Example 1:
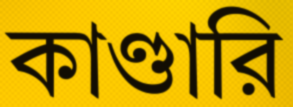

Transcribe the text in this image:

কাণ্ডারি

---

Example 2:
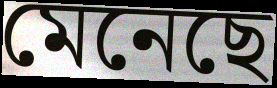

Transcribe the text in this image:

মেনেছে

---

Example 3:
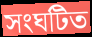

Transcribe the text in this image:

সংঘটিত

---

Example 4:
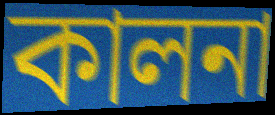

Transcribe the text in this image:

কালনা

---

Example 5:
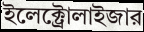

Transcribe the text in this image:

ইলেক্ট্রোলাইজার